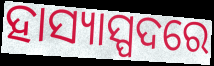
ହାସ୍ୟାସ୍ପଦରେ